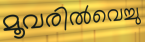
മൂവരിൽവെച്ചു